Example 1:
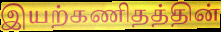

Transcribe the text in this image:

இயற்கணிதத்தின்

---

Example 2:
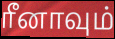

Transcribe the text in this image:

ரீனாவும்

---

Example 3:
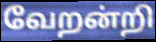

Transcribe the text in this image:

வேறன்றி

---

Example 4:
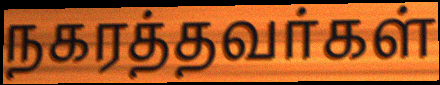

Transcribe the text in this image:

நகரத்தவர்கள்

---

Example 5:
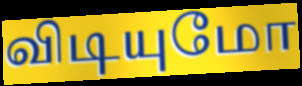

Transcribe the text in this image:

விடியுமோ